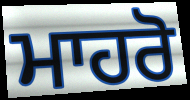
ਮਾਹਰੋ